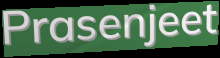
Prasenjeet